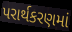
પરાર્થકરણમાં